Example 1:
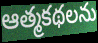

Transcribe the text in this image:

ఆత్మకథలను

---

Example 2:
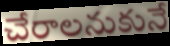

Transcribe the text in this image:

చేరాలనుకునే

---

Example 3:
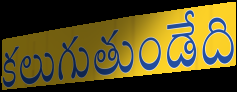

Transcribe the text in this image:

కలుగుతుండేది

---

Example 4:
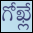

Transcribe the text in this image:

గోఖ్లే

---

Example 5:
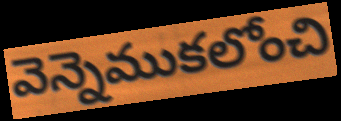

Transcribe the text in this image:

వెన్నెముకలోంచి